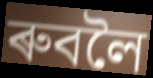
ৰুবলৈ